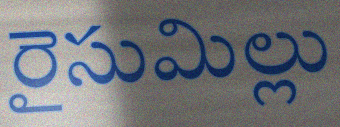
రైసుమిల్లు